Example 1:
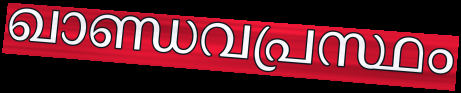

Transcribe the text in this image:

ഖാണ്ഡവപ്രസ്ഥം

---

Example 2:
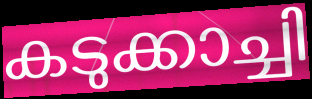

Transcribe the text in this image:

കടുക്കാച്ചി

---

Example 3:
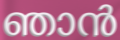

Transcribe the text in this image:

ഞാൻ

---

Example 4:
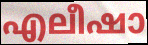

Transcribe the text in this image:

എലീഷാ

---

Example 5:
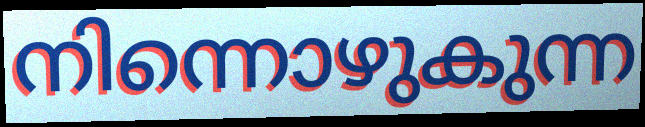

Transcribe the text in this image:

നിന്നൊഴുകുന്ന